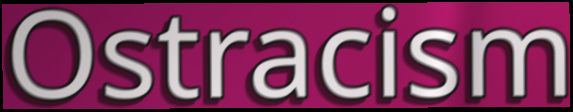
Ostracism